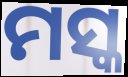
ମସ୍କ